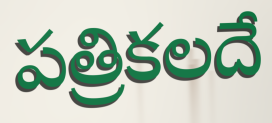
పత్రికలదే